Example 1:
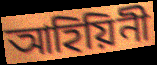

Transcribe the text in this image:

আহিয়িনী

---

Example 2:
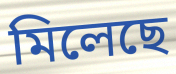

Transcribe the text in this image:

মিলেছে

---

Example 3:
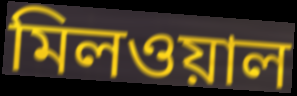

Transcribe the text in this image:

মিলওয়াল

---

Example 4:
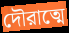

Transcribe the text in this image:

দৌরাত্মে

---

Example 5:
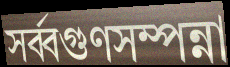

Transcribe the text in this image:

সর্ব্বগুণসম্পন্না